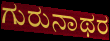
ಗುರುನಾಥರ